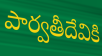
పార్వతీదేవికి